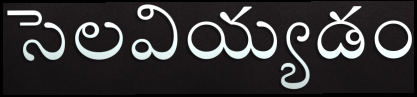
సెలవియ్యడం